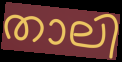
താലി